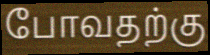
போவதற்கு